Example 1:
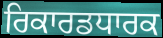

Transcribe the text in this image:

ਰਿਕਾਰਡਧਾਰਕ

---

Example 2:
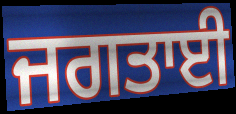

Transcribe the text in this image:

ਜਗਤਾਈ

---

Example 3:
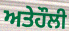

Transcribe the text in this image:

ਅਤੇਹੌਲੀ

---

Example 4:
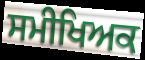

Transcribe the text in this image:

ਸਮੀਖਿਅਕ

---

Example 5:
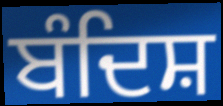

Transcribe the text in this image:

ਬੰਦਿਸ਼